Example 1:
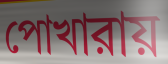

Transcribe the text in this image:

পোখারায়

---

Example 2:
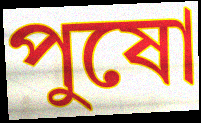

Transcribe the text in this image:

পুষো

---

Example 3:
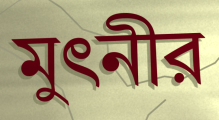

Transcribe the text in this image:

মুৎনীর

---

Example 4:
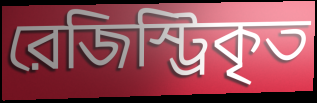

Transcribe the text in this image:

রেজিস্ট্রিকৃত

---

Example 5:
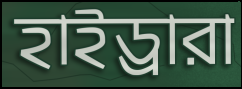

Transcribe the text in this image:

হাইড্রারা